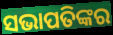
ସଭାପତିଙ୍କର